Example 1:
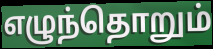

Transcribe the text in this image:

எழுந்தொறும்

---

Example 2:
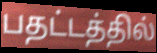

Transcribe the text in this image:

பதட்டத்தில்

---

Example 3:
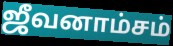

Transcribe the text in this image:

ஜீவனாம்சம்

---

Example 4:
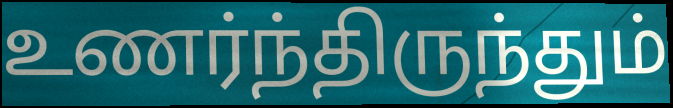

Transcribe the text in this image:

உணர்ந்திருந்தும்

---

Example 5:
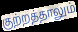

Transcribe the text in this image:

குற்றத்தாலும்